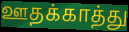
ஊதக்காத்து